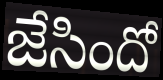
జేసిందో